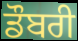
ਡੌਬਰੀ